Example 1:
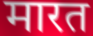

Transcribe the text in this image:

मारत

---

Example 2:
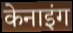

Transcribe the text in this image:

केनाइंग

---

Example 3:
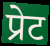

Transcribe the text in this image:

प्रेट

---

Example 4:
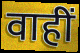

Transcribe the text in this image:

वाहीं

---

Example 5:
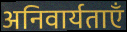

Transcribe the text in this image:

अनिवार्यताएँ